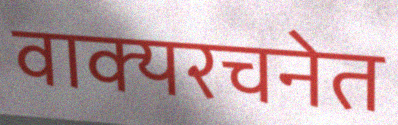
वाक्यरचनेत